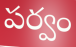
పర్వం